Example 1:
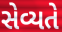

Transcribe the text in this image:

સેવ્યતે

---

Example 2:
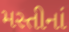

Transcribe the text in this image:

મસ્તીનાં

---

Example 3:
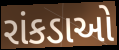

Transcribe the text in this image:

રાંકડાઓ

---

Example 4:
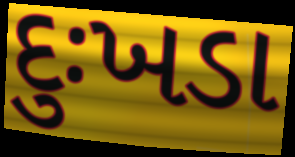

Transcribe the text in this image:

દુઃખડા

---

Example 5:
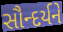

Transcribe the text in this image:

સૌન્દર્યને